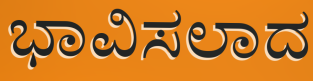
ಭಾವಿಸಲಾದ